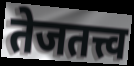
तेजतत्त्व